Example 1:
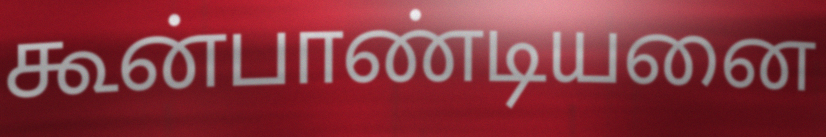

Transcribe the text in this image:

கூன்பாண்டியனை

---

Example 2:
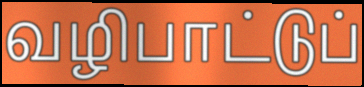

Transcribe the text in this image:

வழிபாட்டுப்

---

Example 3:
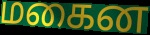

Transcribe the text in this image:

மகைன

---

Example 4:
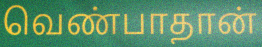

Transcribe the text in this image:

வெண்பாதான்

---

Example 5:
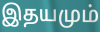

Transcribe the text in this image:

இதயமும்